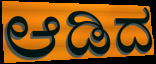
ಆಡಿದ